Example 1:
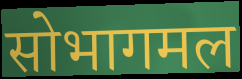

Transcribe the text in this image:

सोभागमल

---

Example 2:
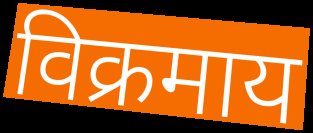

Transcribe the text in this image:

विक्रमाय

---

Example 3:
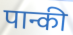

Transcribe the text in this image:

पान्की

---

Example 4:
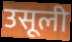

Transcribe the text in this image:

उसूली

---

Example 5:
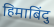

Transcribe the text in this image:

हिमाबिंदु